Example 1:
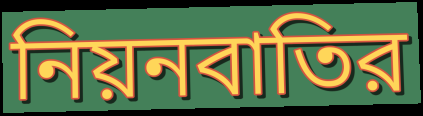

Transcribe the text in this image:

নিয়নবাতির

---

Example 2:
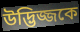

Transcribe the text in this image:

উদ্ভিজ্জকে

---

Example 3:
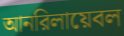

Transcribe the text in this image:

আনরিলায়েবল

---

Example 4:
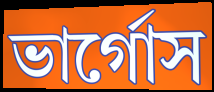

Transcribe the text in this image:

ভার্গোস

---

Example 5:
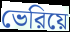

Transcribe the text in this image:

ভেরিয়ে